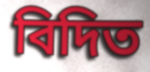
বিদিত